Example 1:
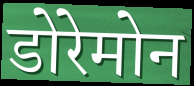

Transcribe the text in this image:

डोरेमोन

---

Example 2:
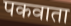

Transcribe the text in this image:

पकवाता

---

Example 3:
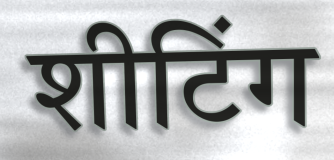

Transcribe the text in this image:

शीटिंग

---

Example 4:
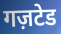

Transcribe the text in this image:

गज़टेड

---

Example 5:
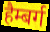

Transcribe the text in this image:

हैम्बर्ग